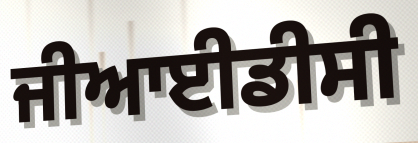
ਜੀਆਈਡੀਸੀ